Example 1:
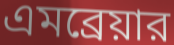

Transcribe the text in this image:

এমব্রেয়ার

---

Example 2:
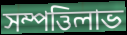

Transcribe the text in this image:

সম্পত্তিলাভ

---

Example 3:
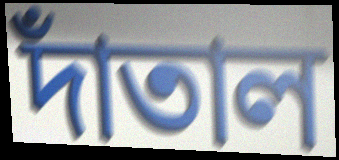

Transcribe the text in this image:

দাঁতাল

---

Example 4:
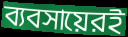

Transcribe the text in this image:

ব্যবসায়েরই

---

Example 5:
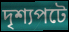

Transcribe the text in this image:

দৃশ্যপটে